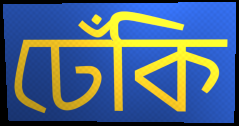
ঢেঁকি